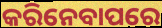
କରିନେବାପରେ